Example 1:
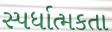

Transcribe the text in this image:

સ્પર્ધાત્મકતા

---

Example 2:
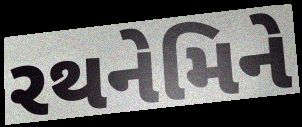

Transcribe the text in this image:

રથનેમિને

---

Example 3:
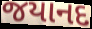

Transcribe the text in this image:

જયાનદ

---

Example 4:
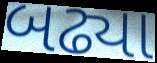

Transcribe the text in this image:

બઢ્યા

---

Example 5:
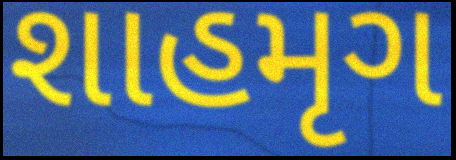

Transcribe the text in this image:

શાહમૃગ